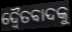
ଦ୍ୱୈତବାଦକୁ